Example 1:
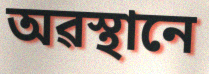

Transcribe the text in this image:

অৱস্থানে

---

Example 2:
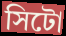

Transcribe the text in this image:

সিটো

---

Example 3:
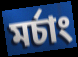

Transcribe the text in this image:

মৰ্চাং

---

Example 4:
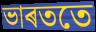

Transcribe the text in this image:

ভাৰততে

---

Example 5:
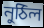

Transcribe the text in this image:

নুঠিল